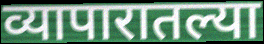
व्यापारातल्या